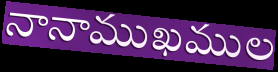
నానాముఖముల